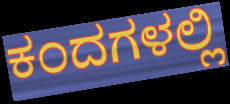
ಕಂದಗಳಲ್ಲಿ